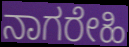
ನಾಗರೇಹಿ